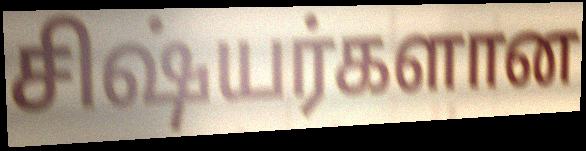
சிஷ்யர்களான